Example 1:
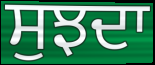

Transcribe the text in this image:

ਸੁਝਦਾ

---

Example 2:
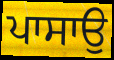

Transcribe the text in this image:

ਪਾਸਾਉ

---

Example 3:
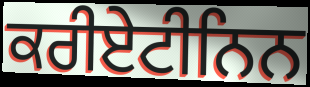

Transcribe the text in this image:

ਕਰੀਏਟੀਨਿਨ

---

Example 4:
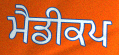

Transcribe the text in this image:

ਮੈਡੀਕਪ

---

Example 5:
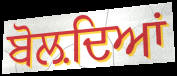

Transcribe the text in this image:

ਬੋਲ਼ਦਿਆਂ